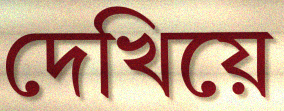
দেখিয়ে